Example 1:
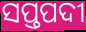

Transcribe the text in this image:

ସପ୍ତପଦୀ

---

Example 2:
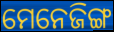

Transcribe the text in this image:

ମେନେଜିଙ୍ଗ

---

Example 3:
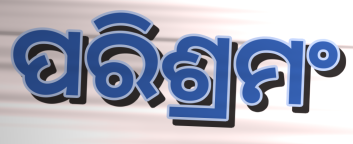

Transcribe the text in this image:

ପରିଶ୍ରମଂ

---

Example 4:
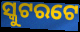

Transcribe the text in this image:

ସ୍କୁଟରଟେ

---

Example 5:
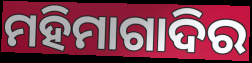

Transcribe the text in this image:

ମହିମାଗାଦିର